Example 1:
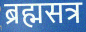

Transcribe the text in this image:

ब्रह्मसत्र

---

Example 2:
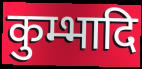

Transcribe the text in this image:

कुम्भादि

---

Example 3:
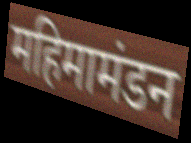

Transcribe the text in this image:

महिमामंडन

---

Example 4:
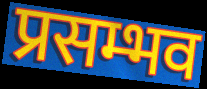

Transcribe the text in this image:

प्रसम्भव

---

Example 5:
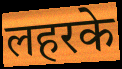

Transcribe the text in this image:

लहरके